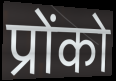
प्रोंको